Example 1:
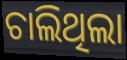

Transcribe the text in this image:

ଚାଲିଥିଲା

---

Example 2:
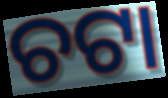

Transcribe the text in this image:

ଚଟା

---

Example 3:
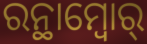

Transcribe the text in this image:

ରନ୍ଥାମ୍ବୋର୍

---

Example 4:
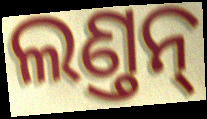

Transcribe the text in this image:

ଲଣ୍ତନ୍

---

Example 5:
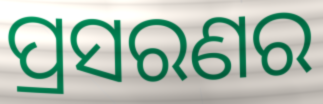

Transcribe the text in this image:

ପ୍ରସରଣର